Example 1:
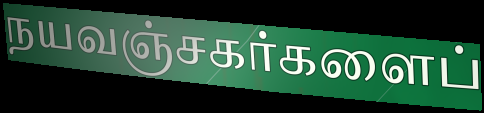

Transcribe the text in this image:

நயவஞ்சகர்களைப்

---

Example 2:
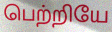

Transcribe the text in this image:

பெற்றியே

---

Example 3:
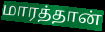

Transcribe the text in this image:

மாரத்தான்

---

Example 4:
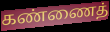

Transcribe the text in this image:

கண்ணைத்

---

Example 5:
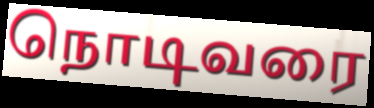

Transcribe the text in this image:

நொடிவரை